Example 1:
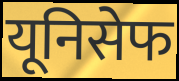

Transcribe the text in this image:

यूनिसेफ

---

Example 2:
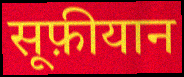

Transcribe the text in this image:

सूफ़ीयान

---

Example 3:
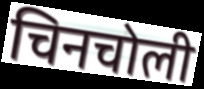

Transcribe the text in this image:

चिनचोली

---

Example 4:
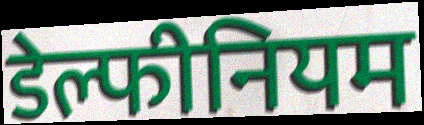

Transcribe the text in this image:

डेल्फीनियम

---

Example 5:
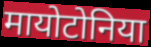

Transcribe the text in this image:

मायोटोनिया